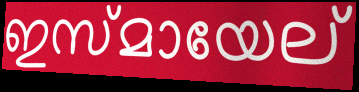
ഇസ്മായേല്